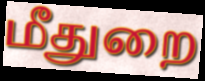
மீதுறை